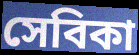
সেবিকা